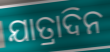
ଯାତ୍ରାଦିନ